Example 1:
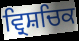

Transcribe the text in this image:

ਵ੍ਰਿਸ਼ਚਿਕ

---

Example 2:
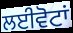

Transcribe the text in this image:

ਲਈਵੋਟਾਂ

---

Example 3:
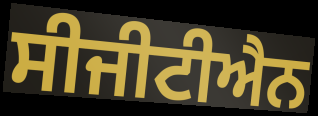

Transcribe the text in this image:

ਸੀਜੀਟੀਐਨ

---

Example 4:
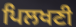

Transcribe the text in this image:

ਪਿਲਖਣੀ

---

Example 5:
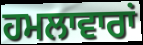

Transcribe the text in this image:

ਹਮਲਾਵਾਰਾਂ